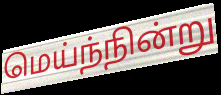
மெய்ந்நின்று